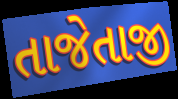
તાજેતાજી